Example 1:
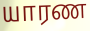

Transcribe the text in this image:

யாரண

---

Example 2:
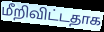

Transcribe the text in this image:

மீறிவிட்டதாக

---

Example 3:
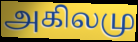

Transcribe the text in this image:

அகிலமு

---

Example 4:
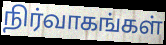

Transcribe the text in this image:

நிர்வாகங்கள்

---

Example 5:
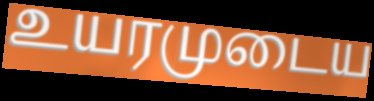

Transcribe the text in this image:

உயரமுடைய